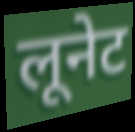
लूनेट